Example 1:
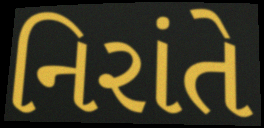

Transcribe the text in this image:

નિરાંતે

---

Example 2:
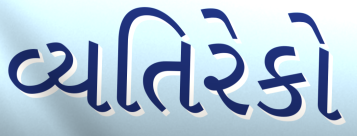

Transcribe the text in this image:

વ્યતિરેકો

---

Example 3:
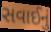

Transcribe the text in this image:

સવાઈનું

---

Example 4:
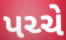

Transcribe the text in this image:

પચ્ચે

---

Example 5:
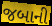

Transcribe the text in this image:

જબાની